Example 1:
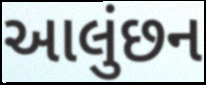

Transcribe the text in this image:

આલુંછન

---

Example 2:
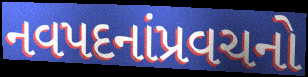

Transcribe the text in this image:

નવપદનાંપ્રવચનો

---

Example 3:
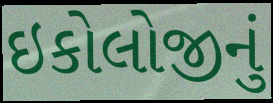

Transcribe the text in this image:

ઇકોલોજીનું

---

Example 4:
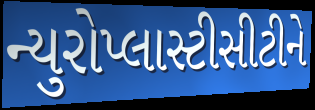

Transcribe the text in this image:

ન્યુરોપ્લાસ્ટીસીટીને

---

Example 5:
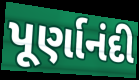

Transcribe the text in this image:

પૂર્ણાનંદી